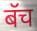
बॅच